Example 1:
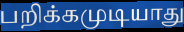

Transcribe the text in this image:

பறிக்கமுடியாது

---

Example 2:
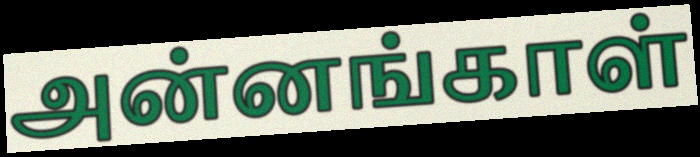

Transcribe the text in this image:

அன்னங்காள்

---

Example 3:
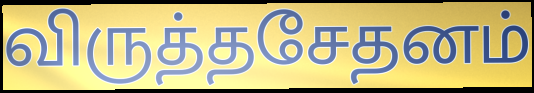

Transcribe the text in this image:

விருத்தசேதனம்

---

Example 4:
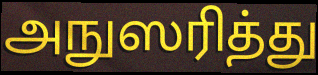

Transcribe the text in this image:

அநுஸரித்து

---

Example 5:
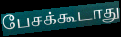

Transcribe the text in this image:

பேசக்கூடாது